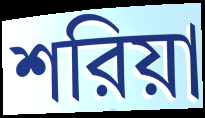
শরিয়া